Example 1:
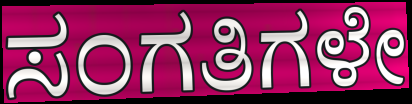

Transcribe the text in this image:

ಸಂಗತಿಗಳೇ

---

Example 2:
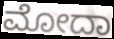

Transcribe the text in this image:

ಮೋದಾ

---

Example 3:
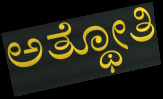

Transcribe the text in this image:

ಅತ್ಥೋತಿ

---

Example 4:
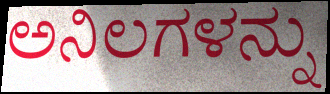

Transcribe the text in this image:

ಅನಿಲಗಳನ್ನು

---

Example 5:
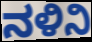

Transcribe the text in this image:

ನಳಿನಿ